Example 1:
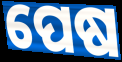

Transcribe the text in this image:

ପେଷ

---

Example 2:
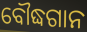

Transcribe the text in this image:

ବୌଦ୍ଧଗାନ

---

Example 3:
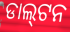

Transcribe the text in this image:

ଡାଲ୍‌ଟନ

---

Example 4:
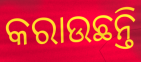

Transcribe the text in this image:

କରାଉଛନ୍ତି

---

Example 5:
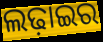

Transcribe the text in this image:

ଲଢ଼ାଇର